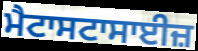
ਮੈਟਾਸਟਾਸਾਈਜ਼